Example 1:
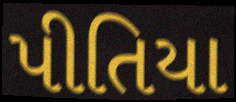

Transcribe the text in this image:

પીતિયા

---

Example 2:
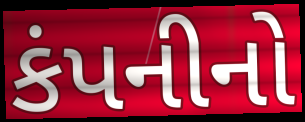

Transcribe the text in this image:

કંપનીનો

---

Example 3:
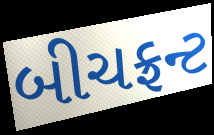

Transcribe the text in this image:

બીચફ્રન્ટ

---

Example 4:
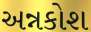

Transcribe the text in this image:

અન્નકોશ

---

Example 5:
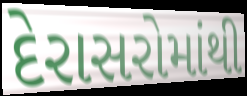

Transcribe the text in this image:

દેરાસરોમાંથી